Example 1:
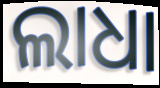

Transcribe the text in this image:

ଲାଧା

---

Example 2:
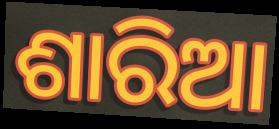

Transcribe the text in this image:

ଶାରିଆ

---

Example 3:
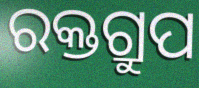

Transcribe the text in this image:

ରକ୍ତଗ୍ରୁପ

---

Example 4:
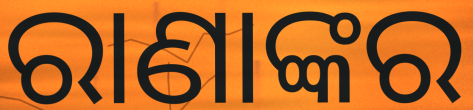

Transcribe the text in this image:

ରାଣାଙ୍କର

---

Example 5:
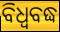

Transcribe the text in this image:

ବିଧ୍ଵବଦ୍ଧ